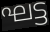
ഘട്ട